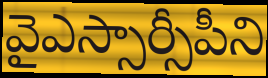
వైఎస్సార్సీపీని